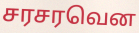
சரசரவென